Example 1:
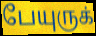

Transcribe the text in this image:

பேயுருக்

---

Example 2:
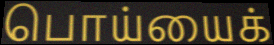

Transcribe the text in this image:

பொய்யைக்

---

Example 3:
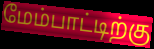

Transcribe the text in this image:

மேம்பாட்டிற்கு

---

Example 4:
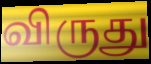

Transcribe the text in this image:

விருது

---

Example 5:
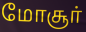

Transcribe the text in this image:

மோசூர்